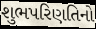
શુભપરિણતિનો